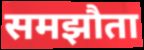
समझौता